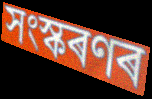
সংস্কৰণৰ